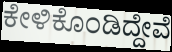
ಕೇಳಿಕೊಂಡಿದ್ದೇವೆ